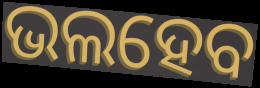
ଭଲହେବ